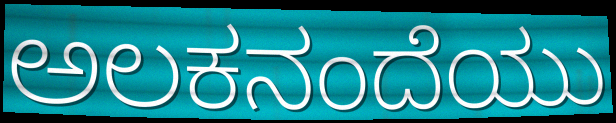
ಅಲಕನಂದೆಯು